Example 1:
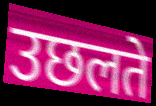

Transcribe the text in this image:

उछलते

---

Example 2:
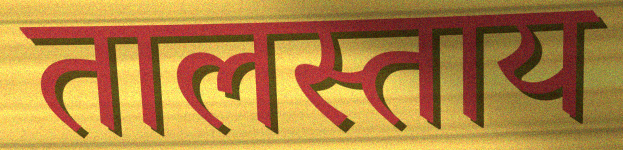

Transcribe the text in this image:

तालस्ताय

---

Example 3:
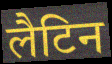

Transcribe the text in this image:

लैटिन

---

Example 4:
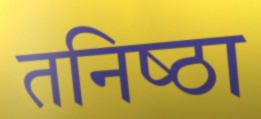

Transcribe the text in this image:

तनिष्‍ठा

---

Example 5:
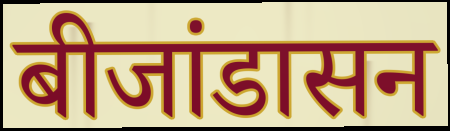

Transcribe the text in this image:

बीजांडासन